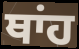
ਥਾਂਹ